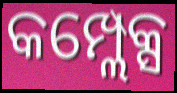
କମ୍ପ୍ଲେକ୍ସ